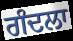
ਗੰਦਲਾ